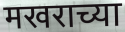
मखराच्या